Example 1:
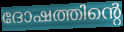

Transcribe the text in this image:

ദോഷത്തിന്റെ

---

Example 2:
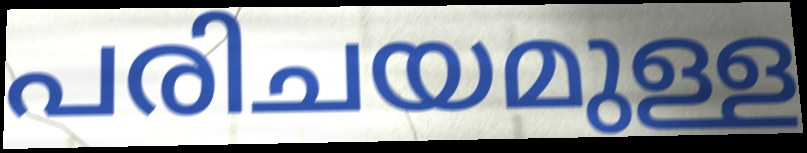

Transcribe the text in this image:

പരിചയമുള്ള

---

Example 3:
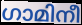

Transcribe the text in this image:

ഗാമിനീ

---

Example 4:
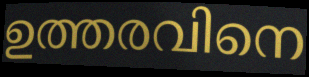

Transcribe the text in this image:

ഉത്തരവിനെ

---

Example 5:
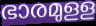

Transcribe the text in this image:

ഭാരമുളള